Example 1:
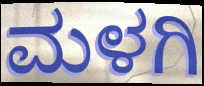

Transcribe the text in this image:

ಮಳಗಿ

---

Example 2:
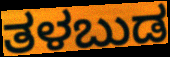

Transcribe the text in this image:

ತಳಬುಡ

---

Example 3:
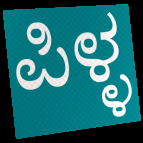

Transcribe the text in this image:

ಪಿಳ್ಳ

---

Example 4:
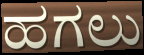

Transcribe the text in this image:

ಹಗಲು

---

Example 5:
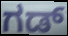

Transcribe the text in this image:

ಗಡ್